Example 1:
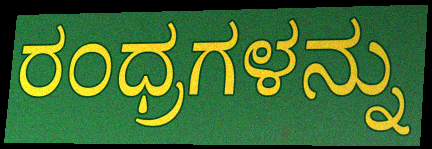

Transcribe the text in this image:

ರಂಧ್ರಗಳನ್ನು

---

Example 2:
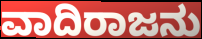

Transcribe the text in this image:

ವಾದಿರಾಜನು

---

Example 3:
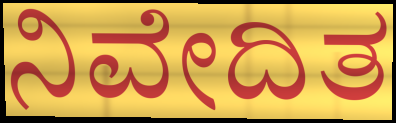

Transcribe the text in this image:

ನಿವೇದಿತ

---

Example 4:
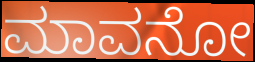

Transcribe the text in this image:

ಮಾವನೋ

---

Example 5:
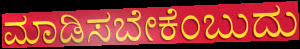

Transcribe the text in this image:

ಮಾಡಿಸಬೇಕೆಂಬುದು